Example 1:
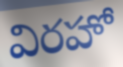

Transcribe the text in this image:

విరహో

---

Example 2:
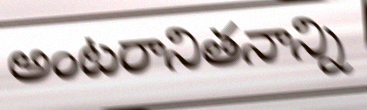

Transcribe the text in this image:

అంటరానితనాన్ని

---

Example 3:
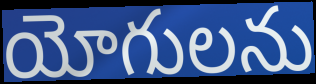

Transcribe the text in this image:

యోగులను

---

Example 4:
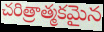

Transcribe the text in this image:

చరిత్రాత్మకమైన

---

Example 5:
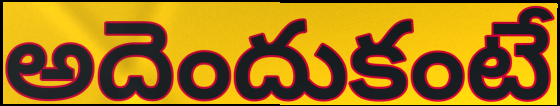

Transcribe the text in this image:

అదెందుకంటే